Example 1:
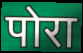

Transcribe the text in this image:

पोरा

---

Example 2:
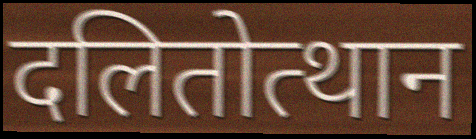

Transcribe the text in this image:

दलितोत्थान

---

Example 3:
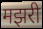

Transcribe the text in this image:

मझरी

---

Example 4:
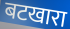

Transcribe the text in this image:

बटखारा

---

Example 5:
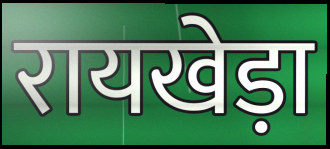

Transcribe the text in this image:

रायखेड़ा